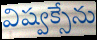
విష్వక్సేను